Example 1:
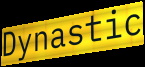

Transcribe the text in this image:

Dynastic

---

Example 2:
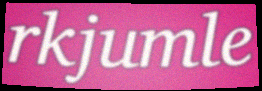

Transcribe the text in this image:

rkjumle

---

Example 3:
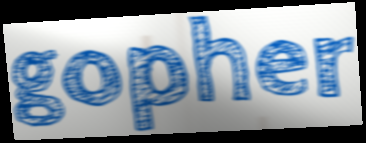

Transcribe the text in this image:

gopher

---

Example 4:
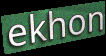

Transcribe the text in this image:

ekhon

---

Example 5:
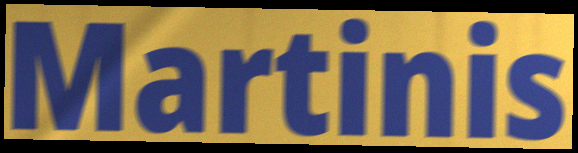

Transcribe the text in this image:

Martinis